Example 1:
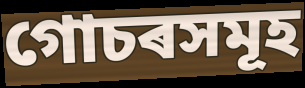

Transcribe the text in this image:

গোচৰসমূহ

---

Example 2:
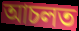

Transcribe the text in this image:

আচলত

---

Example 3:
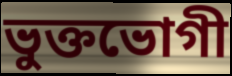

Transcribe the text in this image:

ভুক্তভোগী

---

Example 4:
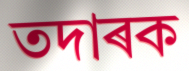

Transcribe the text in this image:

তদাৰক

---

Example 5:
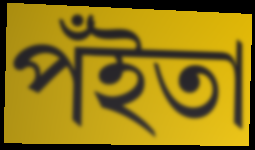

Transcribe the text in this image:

পঁইতা